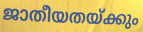
ജാതീയതയ്ക്കും